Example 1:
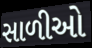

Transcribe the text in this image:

સાળીઓ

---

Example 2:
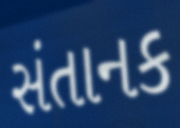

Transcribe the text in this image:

સંતાનક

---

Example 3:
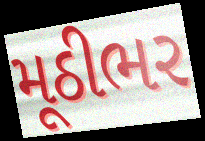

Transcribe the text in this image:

મૂઠીભર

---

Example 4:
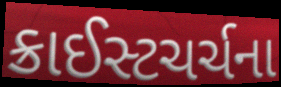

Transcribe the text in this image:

ક્રાઈસ્ટચર્ચના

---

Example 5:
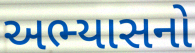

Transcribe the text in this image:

અભ્યાસનો